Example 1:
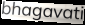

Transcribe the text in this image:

bhagavati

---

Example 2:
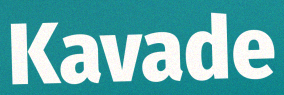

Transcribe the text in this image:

Kavade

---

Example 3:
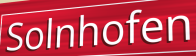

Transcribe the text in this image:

Solnhofen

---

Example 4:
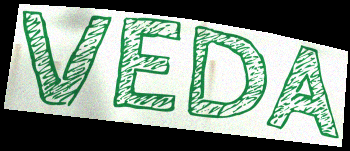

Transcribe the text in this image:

VEDA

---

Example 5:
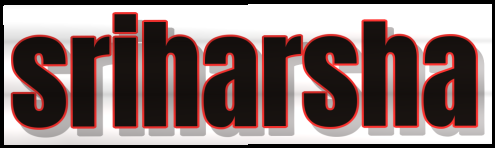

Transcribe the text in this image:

sriharsha